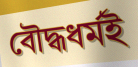
বৌদ্ধধৰ্মই